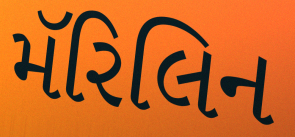
મૅરિલિન